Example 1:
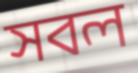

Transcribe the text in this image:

সবল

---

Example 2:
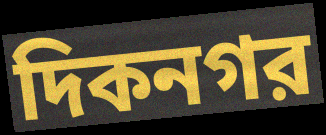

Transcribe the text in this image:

দিকনগর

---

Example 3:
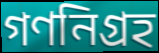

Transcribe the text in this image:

গণনিগ্রহ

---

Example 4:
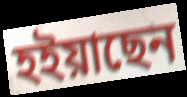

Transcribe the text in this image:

হইয়াছেন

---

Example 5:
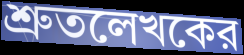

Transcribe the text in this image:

শ্রুতলেখকের